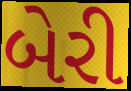
બેરી